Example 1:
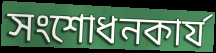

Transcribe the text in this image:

সংশোধনকার্য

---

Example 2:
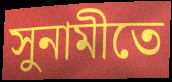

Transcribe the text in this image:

সুনামীতে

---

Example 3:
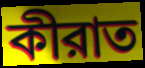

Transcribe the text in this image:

কীরাত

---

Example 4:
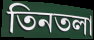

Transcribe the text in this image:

তিনতলা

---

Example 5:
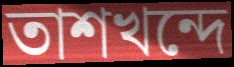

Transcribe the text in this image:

তাশখন্দে